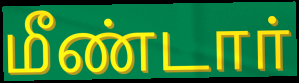
மீண்டார்